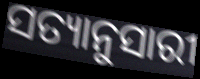
ସତ୍ୟାନୁସାରୀ